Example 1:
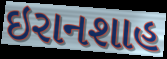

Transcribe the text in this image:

ઇરાનશાહ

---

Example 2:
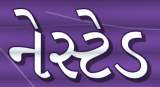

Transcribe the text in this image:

નેસ્ટેડ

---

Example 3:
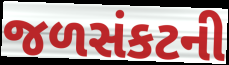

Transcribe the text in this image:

જળસંકટની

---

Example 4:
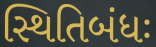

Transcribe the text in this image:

સ્થિતિબંધઃ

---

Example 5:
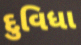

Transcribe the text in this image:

દુવિધા